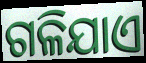
ଗଳିଯାଏ